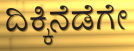
ದಿಕ್ಕಿನೆಡೆಗೇ